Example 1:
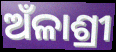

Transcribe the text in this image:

ଅଁଳାଶ୍ରୀ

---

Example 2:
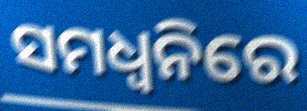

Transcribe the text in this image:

ସମଧ୍ୱନିରେ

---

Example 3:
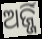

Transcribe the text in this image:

ଅର୍ଜ୍ଜି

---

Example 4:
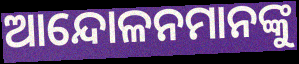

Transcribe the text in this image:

ଆନ୍ଦୋଳନମାନଙ୍କୁ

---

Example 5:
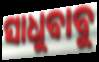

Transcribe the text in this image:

ସାଧୁବାବୁ